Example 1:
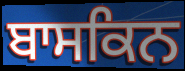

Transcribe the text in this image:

ਬਾਸਕਿਨ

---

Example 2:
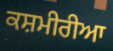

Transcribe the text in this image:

ਕਸ਼ਮੀਰੀਆ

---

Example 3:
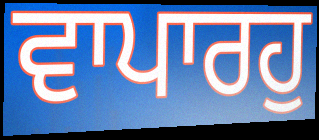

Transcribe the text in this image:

ਵਾਪਾਰਹੁ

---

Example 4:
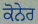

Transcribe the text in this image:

ਕੋਨੇਰ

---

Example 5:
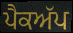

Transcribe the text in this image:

ਪੈਕਅੱਪ